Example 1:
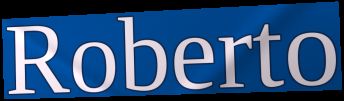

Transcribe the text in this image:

Roberto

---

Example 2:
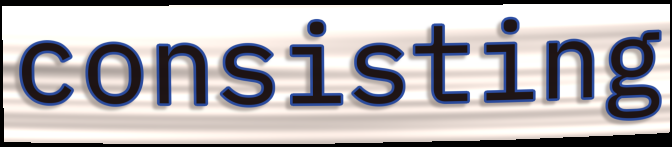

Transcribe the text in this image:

consisting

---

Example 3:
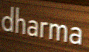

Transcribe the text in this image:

dharma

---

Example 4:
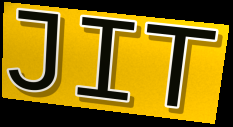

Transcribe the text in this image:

JIT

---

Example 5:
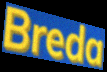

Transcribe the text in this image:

Breda